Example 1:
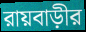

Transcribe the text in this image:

রায়বাড়ীর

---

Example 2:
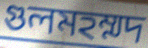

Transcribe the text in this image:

গুলমহম্মদ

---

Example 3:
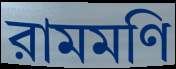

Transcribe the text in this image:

রামমণি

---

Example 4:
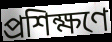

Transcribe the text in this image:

প্রশিক্ষণে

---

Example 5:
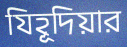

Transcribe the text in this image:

যিহূদিয়ার